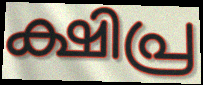
ക്ഷിപ്ര